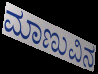
ಮಾಣುವಿನ